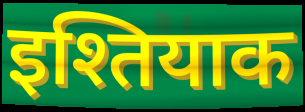
इश्तियाक